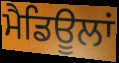
ਮੈਡਿਊਲਾਂ